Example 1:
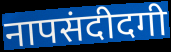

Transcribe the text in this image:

नापसंदीदगी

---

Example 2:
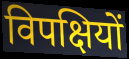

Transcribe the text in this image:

विपक्षियों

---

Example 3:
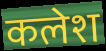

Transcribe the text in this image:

कलेश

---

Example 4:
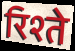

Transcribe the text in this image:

रिश्ते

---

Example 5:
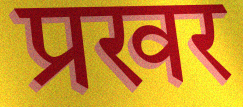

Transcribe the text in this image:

प्रखर